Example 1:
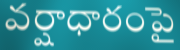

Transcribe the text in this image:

వర్షాధారంపై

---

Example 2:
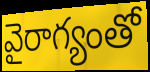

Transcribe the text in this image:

వైరాగ్యంతో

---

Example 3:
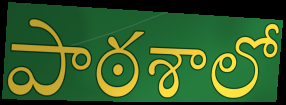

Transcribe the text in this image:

పాఠశాలో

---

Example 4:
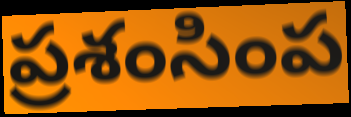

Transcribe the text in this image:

ప్రశంసింప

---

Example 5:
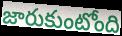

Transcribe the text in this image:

జారుకుంటోంది